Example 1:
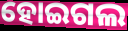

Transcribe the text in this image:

ହୋଇଗଲ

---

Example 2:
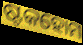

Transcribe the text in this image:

ଷ୍ଟକହୋମ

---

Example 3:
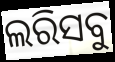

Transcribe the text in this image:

ଲରିସବୁ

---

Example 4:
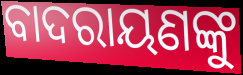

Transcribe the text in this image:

ବାଦରାୟଣଙ୍କୁ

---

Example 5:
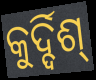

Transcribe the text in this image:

କୁର୍ଦ୍ଦିଶ୍